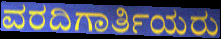
ವರದಿಗಾರ್ತಿಯರು